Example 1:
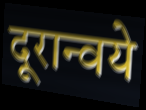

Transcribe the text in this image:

दूरान्वये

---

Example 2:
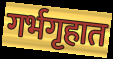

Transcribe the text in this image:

गर्भगृहात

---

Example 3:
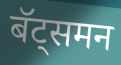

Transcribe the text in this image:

बॅट्समन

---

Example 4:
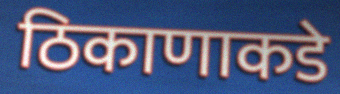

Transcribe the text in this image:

ठिकाणाकडे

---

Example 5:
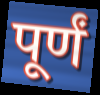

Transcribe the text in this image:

पूर्णं